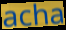
acha